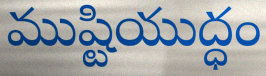
ముష్టియుద్ధం